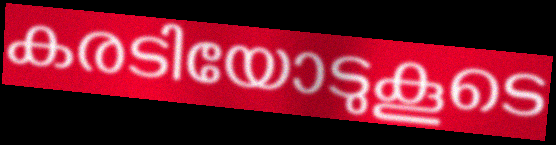
കരടിയോടുകൂടെ